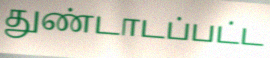
துண்டாடப்பட்ட